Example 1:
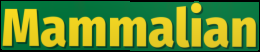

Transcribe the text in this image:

Mammalian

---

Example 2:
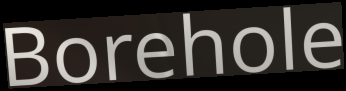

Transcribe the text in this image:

Borehole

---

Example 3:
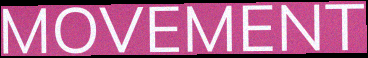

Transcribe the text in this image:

MOVEMENT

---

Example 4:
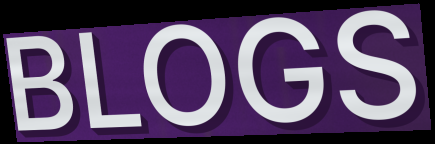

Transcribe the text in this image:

BLOGS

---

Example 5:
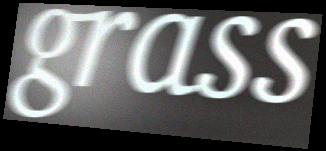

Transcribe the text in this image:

grass